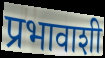
प्रभावाशी